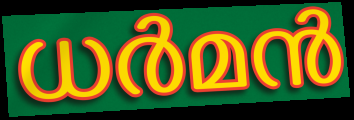
ധർമൻ